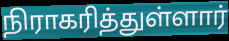
நிராகரித்துள்ளார்